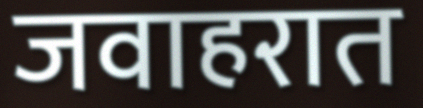
जवाहरात